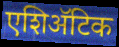
एशिॲटिक